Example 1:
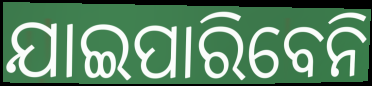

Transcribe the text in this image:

ଯାଇପାରିବେନି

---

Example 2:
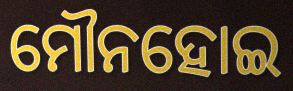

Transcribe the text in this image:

ମୌନହୋଇ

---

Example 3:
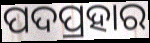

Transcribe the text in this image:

ପଦପ୍ରହାର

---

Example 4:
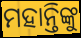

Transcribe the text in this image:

ମହାନ୍ତିଙ୍କୁ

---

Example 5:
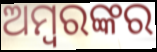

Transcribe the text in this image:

ଅମ୍ବରଙ୍କର